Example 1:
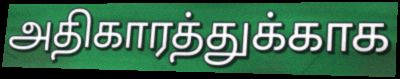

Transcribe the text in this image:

அதிகாரத்துக்காக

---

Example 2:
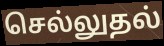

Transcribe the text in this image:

செல்லுதல்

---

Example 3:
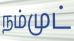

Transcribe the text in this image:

நம்முட்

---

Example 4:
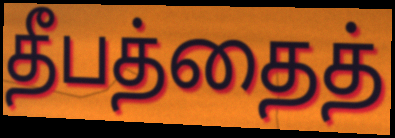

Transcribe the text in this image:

தீபத்தைத்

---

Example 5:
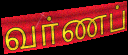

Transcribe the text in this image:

வர்ணப்